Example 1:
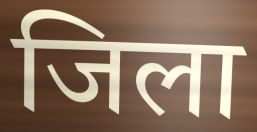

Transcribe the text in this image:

जिला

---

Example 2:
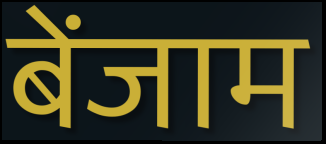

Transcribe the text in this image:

बेंजाम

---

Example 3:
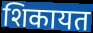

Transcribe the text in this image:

शिकायत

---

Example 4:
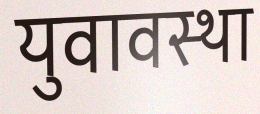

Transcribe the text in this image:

युवावस्था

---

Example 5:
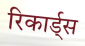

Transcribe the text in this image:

रिकार्ड्स